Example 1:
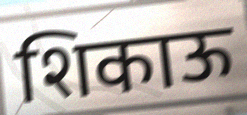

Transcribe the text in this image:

शिकाऊ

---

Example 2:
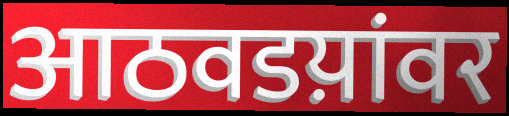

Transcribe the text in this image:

आठवडय़ांवर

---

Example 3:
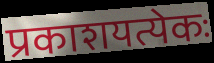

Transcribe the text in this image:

प्रकाशयत्येकः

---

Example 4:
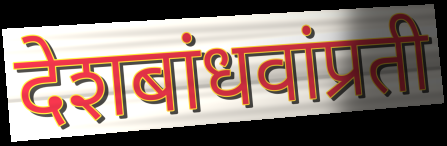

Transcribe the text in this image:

देशबांधवांप्रती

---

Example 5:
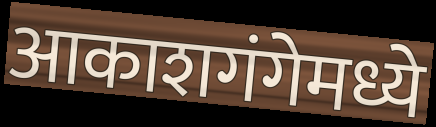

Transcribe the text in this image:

आकाशगंगेमध्ये